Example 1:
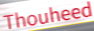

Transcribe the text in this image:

Thouheed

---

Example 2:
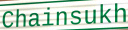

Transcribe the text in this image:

Chainsukh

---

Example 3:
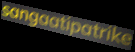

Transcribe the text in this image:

sangaatipatrike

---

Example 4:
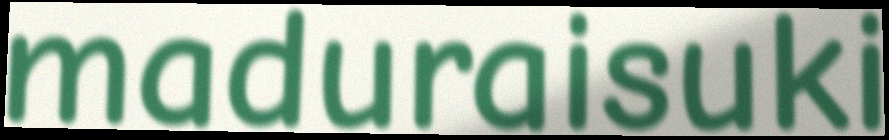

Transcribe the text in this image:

maduraisuki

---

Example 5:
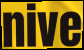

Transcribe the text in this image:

nive